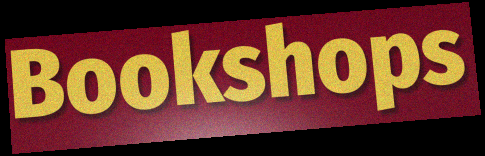
Bookshops